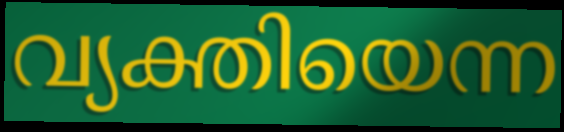
വ്യക്തിയെന്ന